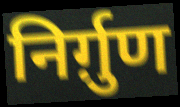
निर्ग़ुण